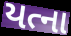
યત્ના